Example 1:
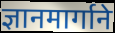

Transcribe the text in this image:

ज्ञानमार्गाने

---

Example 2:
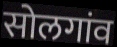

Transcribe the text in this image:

सोलगांव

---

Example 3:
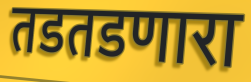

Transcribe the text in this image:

तडतडणारा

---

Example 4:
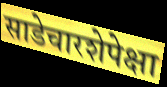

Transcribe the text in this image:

साडेचारशेपेक्षा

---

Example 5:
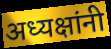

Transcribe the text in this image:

अध्यक्षांनी